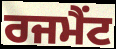
ਰਜਮੈਂਟ